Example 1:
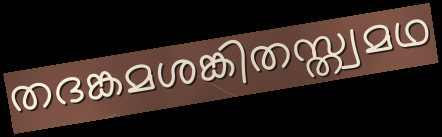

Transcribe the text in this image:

തദങ്കമശങ്കിതസ്ത്വമഥ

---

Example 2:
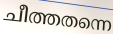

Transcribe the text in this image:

ചീത്തതന്നെ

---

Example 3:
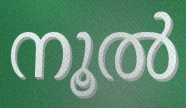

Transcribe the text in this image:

നൂൽ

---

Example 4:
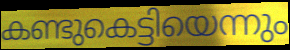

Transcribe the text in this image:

കണ്ടുകെട്ടിയെന്നും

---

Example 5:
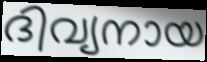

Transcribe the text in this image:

ദിവ്യനായ